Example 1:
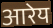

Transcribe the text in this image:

आरेय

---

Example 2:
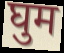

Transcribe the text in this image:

घुम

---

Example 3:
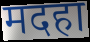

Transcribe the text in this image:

मदहा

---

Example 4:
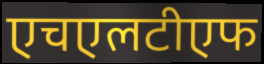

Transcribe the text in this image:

एचएलटीएफ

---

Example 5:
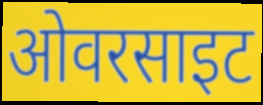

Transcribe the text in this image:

ओवरसाइट